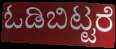
ಓಡಿಬಿಟ್ಟರೆ